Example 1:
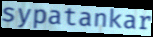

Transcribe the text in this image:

sypatankar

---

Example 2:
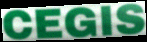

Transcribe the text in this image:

CEGIS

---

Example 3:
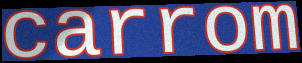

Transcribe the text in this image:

carrom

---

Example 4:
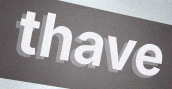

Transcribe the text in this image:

thave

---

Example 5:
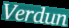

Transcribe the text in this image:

Verdun